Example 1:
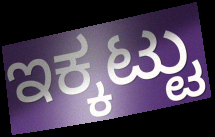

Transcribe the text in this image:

ಇಕ್ಕಟ್ಟು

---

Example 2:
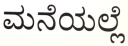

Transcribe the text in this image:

ಮನೆಯಲ್ಲೆ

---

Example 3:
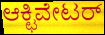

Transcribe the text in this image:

ಆಕ್ಟಿವೇಟರ್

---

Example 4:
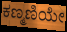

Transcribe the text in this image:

ಕಣ್ಮಣಿಯೇ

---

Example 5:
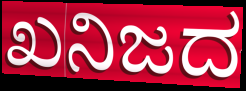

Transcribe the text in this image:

ಖನಿಜದ